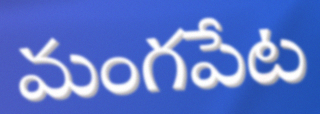
మంగపేట